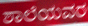
ಶಾಲೆಯವರ